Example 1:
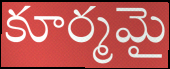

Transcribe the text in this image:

కూర్మమై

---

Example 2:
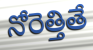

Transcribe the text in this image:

నోరెత్తితే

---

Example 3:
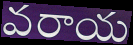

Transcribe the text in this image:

వరాయ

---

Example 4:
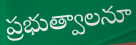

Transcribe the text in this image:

ప్రభుత్వాలనూ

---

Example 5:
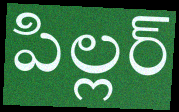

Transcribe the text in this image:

పిల్లర్